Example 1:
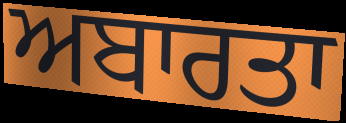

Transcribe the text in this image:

ਅਬਾਰਤਾ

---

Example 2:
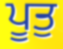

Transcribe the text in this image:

ਪੂਤੁ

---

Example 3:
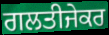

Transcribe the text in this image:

ਗਲਤੀਜੇਕਰ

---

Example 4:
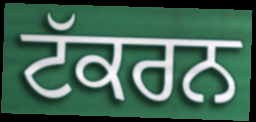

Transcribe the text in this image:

ਟੱਕਰਨ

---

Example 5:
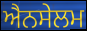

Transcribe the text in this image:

ਐਨਸੇਲਮ